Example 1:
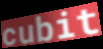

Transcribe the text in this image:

cubit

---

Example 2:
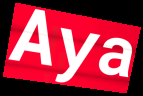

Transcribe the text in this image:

Aya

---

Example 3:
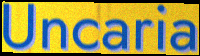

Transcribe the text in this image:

Uncaria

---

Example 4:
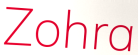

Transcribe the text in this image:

Zohra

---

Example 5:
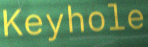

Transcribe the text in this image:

Keyhole